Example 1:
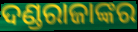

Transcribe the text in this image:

ଦଣ୍ଡରାଜାଙ୍କର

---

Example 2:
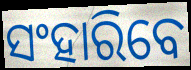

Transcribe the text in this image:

ସଂହାରିବେ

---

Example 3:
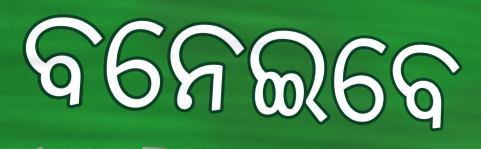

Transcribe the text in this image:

ବନେଇବେ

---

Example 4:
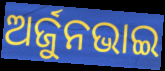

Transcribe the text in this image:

ଅର୍ଜୁନଭାଇ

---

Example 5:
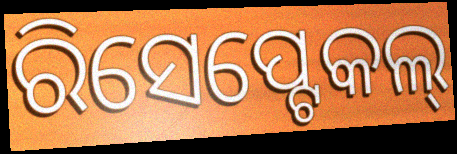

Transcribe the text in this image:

ରିସେପ୍ଟେକଲ୍